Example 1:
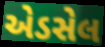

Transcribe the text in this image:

એડસેલ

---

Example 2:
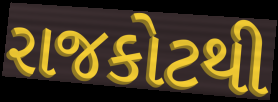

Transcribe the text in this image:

રાજકોટથી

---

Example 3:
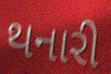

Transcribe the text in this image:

થનારી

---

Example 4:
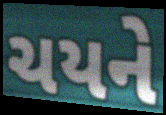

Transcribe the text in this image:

ચયને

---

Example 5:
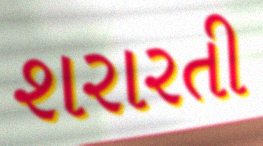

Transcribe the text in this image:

શરારતી